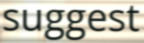
suggest